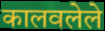
कालवलेले